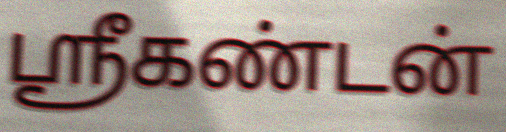
ஸ்ரீகண்டன்